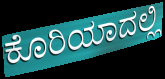
ಕೊರಿಯಾದಲ್ಲಿ